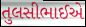
તુલસીભાઈએ